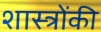
शास्त्रोंकी